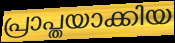
പ്രാപ്തയാക്കിയ